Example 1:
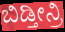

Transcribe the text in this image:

ಬಿಡ್ತೀನ್ರಿ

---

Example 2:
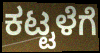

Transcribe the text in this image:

ಕಟ್ಟಳೆಗೆ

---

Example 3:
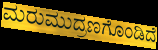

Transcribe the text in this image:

ಮರುಮುದ್ರಣಗೊಂಡಿದೆ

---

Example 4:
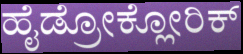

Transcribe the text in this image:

ಹೈಡ್ರೋಕ್ಲೋರಿಕ್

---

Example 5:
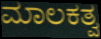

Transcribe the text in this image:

ಮಾಲಕತ್ವ